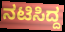
ನಟಿಸಿದ್ದ